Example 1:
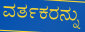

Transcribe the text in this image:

ವರ್ತಕರನ್ನು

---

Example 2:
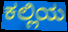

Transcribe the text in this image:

ಕಲ್ಲಿಯ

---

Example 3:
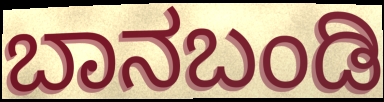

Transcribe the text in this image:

ಬಾನಬಂಡಿ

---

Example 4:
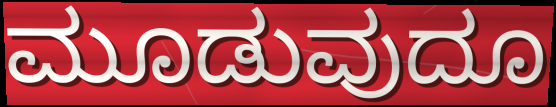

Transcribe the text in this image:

ಮೂಡುವುದೂ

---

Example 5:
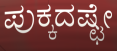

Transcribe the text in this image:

ಪುಕ್ಕದಷ್ಟೇ